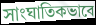
সাংঘাতিকভাবে